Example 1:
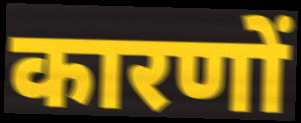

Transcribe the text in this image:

कारणों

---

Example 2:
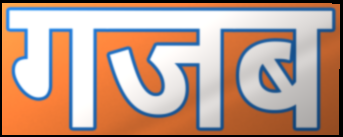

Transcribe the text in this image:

गजब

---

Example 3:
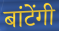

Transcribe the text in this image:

बांटेंगी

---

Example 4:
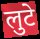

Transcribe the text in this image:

लुटे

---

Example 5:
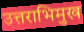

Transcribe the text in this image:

उत्तराभिमुख